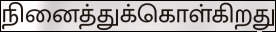
நினைத்துக்கொள்கிறது